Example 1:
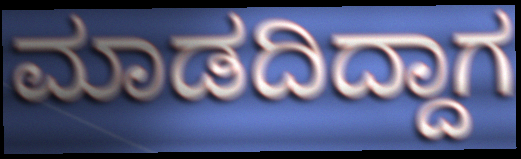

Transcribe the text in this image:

ಮಾಡದಿದ್ದಾಗ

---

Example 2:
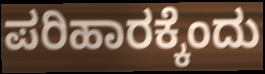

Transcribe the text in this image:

ಪರಿಹಾರಕ್ಕೆಂದು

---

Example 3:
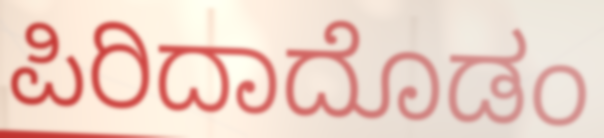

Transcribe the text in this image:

ಪಿರಿದಾದೊಡಂ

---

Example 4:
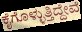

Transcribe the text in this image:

ಕೈಗೊಳ್ಳುತ್ತಿದ್ದೇವೆ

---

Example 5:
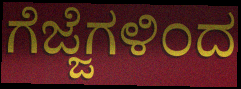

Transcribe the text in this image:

ಗೆಜ್ಜೆಗಳಿಂದ